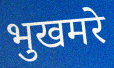
भुखमरे